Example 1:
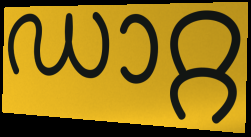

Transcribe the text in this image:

ഡാറ്റ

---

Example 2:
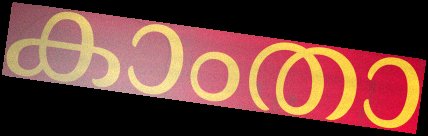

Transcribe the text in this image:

കാംതാ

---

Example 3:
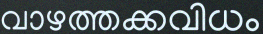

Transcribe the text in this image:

വാഴത്തക്കവിധം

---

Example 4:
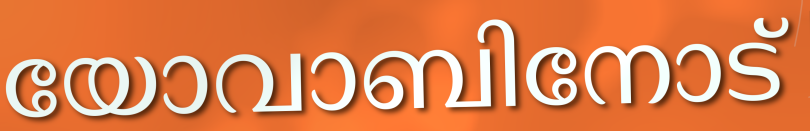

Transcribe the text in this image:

യോവാബിനോട്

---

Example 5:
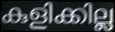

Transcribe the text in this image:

കുളിക്കില്ല